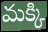
మక్కి